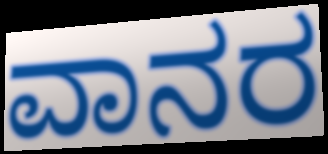
ವಾನರ